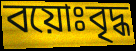
বয়োঃবৃদ্ধ